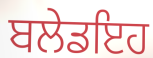
ਬਲੇਡਇਹ